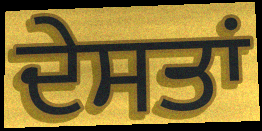
ਦੇਸਤਾਂ